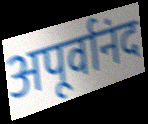
अपूर्वानंद